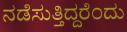
ನಡೆಸುತ್ತಿದ್ದರೆಂದು